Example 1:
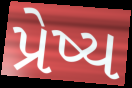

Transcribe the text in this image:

પ્રેષ્ય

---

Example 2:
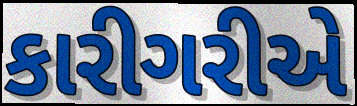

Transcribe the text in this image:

કારીગરીએ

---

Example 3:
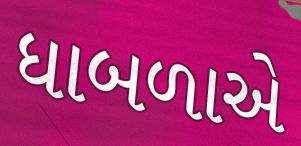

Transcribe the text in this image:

ધાબળાએ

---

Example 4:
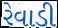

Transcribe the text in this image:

રેવાડી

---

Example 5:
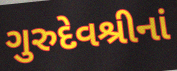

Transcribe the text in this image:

ગુરુદેવશ્રીનાં